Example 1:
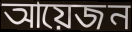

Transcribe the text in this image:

আয়েজন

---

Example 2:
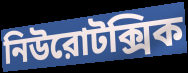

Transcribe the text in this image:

নিউরোটক্সিক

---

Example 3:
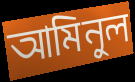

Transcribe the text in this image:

আমিনুল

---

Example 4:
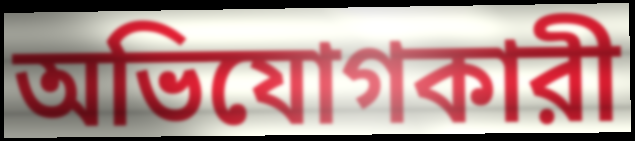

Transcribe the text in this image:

অভিযোগকারী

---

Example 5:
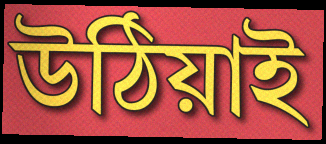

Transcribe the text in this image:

উঠিয়াই